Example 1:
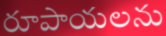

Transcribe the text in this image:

రూపాయలను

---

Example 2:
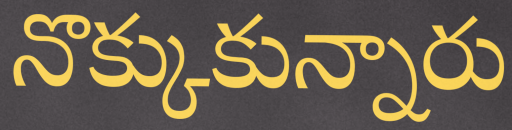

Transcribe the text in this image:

నొక్కుకున్నారు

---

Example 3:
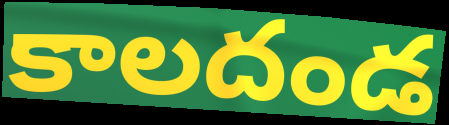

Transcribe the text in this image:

కాలదండ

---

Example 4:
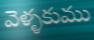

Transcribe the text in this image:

వెళ్ళకుము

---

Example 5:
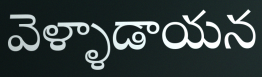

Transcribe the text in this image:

వెళ్ళాడాయన